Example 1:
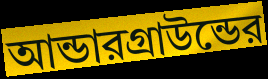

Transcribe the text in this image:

আন্ডারগ্রাউন্ডের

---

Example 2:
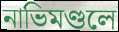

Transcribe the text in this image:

নাভিমণ্ডলে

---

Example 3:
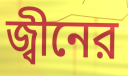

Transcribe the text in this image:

জ্বীনের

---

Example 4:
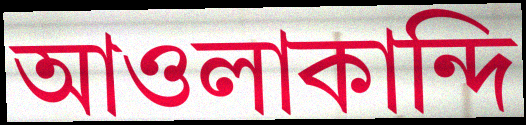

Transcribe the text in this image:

আওলাকান্দি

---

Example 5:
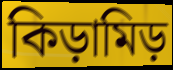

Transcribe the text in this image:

কিড়ামিড়